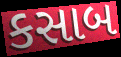
કસાબ